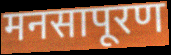
मनसापूरण